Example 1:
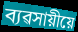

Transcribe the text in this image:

ব্যৱসায়ীয়ে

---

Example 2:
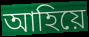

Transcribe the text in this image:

আহিয়ে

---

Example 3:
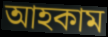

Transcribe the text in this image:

আহকাম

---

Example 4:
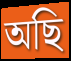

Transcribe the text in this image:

অছি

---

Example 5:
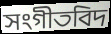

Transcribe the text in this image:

সংগীতবিদ